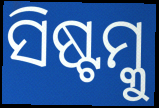
ସିଷ୍ଟମ୍କୁ